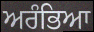
ਅਰੰਭਿਆ